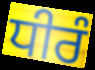
ਧੀਰੰ